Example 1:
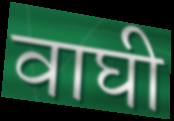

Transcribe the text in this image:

वाघी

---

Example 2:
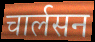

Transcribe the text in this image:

चार्लसन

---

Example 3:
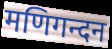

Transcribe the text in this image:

मणिगन्दन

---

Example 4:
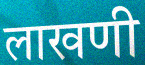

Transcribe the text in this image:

लाखणी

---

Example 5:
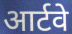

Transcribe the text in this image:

आर्टवे